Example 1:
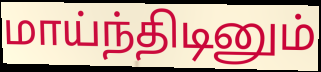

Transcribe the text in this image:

மாய்ந்திடினும்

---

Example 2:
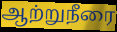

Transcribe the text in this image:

ஆற்றுநீரை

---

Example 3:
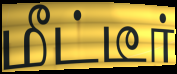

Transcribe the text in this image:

மீட்டீர்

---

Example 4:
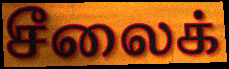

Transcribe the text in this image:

சீலைக்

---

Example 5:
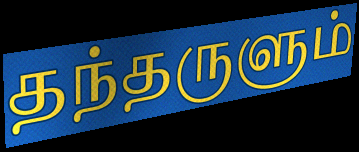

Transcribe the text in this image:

தந்தருளும்